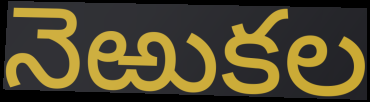
నెఱుకల